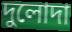
দুলোদা